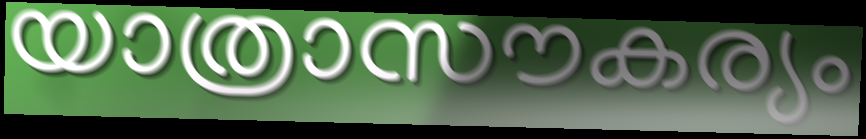
യാത്രാസൗകര്യം